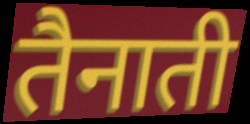
तैनाती